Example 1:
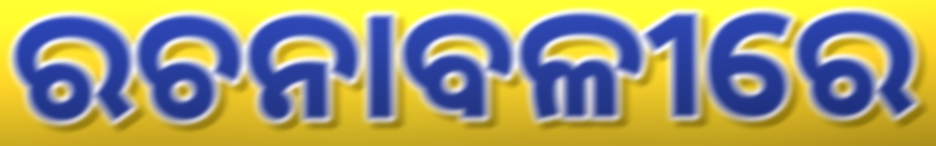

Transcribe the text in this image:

ରଚନାବଳୀରେ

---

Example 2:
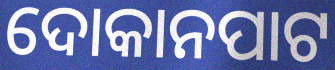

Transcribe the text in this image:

ଦୋକାନପାଟ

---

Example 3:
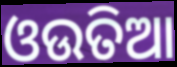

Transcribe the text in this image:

ଓଉତିଆ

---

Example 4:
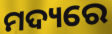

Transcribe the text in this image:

ମଦ୍ୟରେ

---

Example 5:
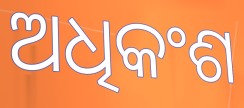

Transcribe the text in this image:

ଅଧିକଂଶ